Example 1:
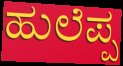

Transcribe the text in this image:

ಹುಲೆಪ್ಪ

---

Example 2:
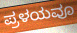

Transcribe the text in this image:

ಪ್ರಳಯವೂ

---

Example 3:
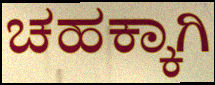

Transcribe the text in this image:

ಚಹಕ್ಕಾಗಿ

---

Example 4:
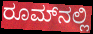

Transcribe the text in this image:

ರೂಮ್‌ನಲ್ಲಿ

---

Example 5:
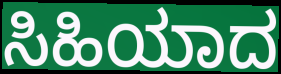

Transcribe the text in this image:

ಸಿಹಿಯಾದ